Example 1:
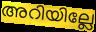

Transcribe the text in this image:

അറിയില്ലേ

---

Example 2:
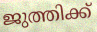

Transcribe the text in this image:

ജുത്തിക്ക്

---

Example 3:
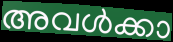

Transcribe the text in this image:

അവൾക്കാ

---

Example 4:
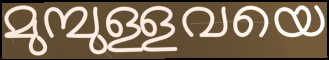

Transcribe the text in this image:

മുമ്പുള്ളവയെ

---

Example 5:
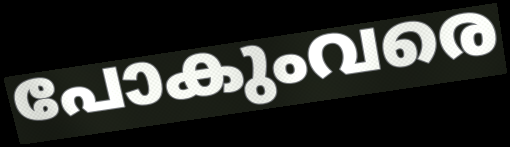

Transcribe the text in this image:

പോകുംവരെ